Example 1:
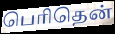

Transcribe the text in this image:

பெரிதென்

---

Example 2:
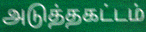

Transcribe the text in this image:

அடுத்தகட்டம்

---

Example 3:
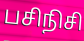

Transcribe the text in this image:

பசிநிசி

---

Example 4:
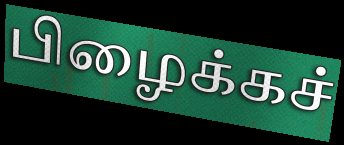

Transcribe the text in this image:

பிழைக்கச்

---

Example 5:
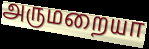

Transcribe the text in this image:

அருமறையா